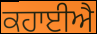
ਕਹਾਈਐ